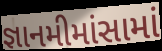
જ્ઞાનમીમાંસામાં